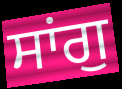
ਸਾਂਗੁ